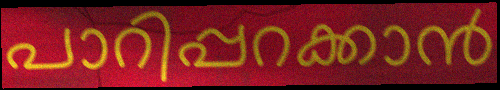
പാറിപ്പറക്കാൻ